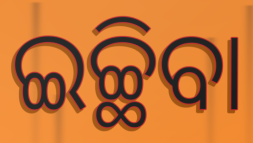
ଇଚ୍ଛିବା